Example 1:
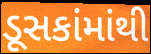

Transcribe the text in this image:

ડૂસકાંમાંથી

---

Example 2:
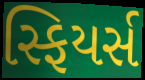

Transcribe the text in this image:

સ્ફિયર્સ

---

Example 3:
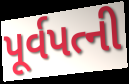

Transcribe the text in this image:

પૂર્વપત્ની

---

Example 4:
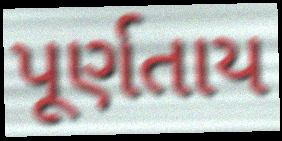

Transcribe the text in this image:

પૂર્ણતાય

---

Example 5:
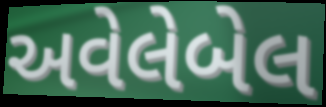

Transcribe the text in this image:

અવેલેબેલ